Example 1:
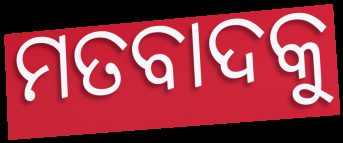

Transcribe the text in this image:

ମତବାଦକୁ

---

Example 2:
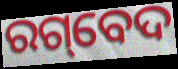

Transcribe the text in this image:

ରଗ୍‌ବେଦ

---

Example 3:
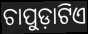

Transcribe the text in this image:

ଚାପୁଡ଼ାଟିଏ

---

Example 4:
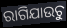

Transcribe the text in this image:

ରାଗିଯାଉଚୁ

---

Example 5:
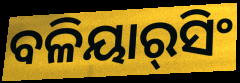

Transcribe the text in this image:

ବଳିୟାର୍‌ସିଂ